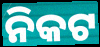
ନିକଟ